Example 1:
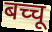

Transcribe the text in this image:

बच्चू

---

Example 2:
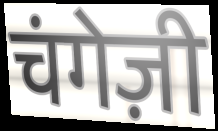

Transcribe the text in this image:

चंगेज़ी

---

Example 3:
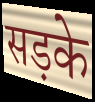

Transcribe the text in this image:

सड़के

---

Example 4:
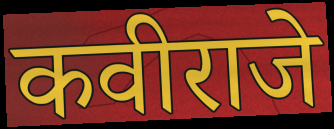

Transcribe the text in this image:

कवीराजे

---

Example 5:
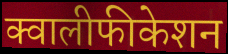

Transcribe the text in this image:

क्वालीफीकेशन